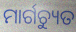
ମାର୍ଗଚ୍ୟୁତ